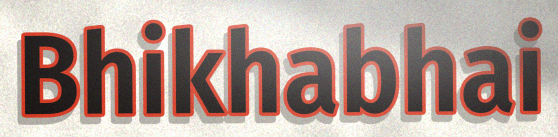
Bhikhabhai